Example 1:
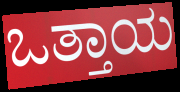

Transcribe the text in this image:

ಒತ್ತಾಯ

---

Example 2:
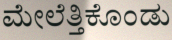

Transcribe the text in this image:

ಮೇಲೆತ್ತಿಕೊಂಡು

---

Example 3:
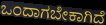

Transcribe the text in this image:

ಒಂದಾಗಬೇಕಾಗಿದೆ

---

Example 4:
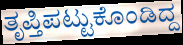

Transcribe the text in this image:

ತೃಪ್ತಿಪಟ್ಟುಕೊಂಡಿದ್ದ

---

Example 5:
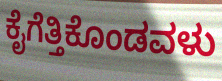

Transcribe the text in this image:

ಕೈಗೆತ್ತಿಕೊಂಡವಳು